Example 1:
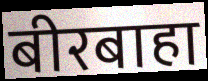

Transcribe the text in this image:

बीरबाहा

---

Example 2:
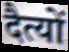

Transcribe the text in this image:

दैत्यों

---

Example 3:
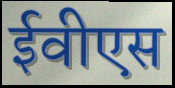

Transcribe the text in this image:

ईवीएस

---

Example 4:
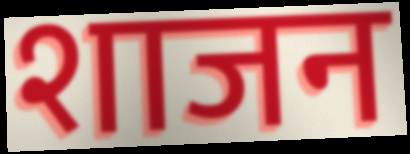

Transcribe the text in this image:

शाजन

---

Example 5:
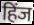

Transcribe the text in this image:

हिंज